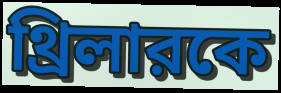
থ্রিলারকে